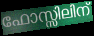
ഫോസ്സിലിന്